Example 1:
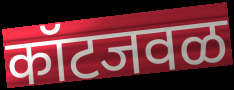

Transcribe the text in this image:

कॉटजवळ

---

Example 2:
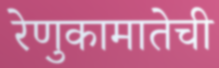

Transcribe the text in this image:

रेणुकामातेची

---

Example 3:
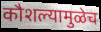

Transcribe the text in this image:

कौशल्यामुळेच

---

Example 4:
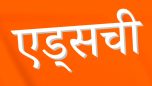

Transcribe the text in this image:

एड्सची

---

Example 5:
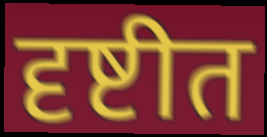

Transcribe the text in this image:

दृष्टीत